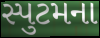
સ્પુટમના